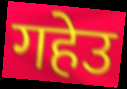
गहेउ